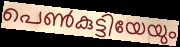
പെൺകുട്ടിയേയും